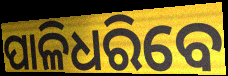
ପାଳିଧରିବେ